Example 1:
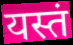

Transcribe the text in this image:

यस्तं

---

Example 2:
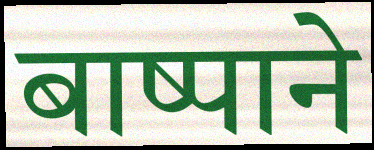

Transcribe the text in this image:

बाष्पाने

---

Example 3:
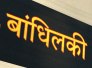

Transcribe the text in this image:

बांधिलकी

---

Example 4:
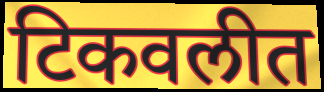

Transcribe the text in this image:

टिकवलीत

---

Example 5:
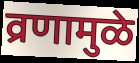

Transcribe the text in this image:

व्रणामुळे